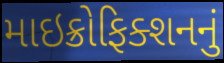
માઇક્રોફિક્શનનું